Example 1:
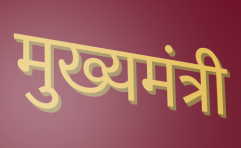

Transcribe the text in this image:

मुख्यमंत्री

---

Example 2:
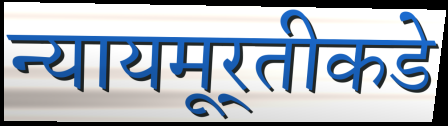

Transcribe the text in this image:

न्यायमूर्तीकडे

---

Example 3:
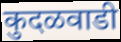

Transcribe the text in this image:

कुदळवाडी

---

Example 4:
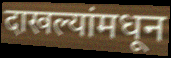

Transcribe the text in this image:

दाखल्यांमधून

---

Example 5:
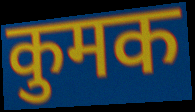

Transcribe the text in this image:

कुमक